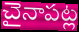
చైనాపట్ల